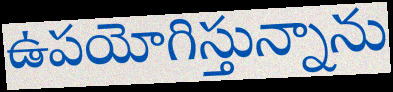
ఉపయోగిస్తున్నాను